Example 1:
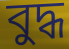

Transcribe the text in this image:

বুদ্ধ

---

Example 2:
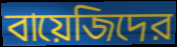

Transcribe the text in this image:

বায়েজিদের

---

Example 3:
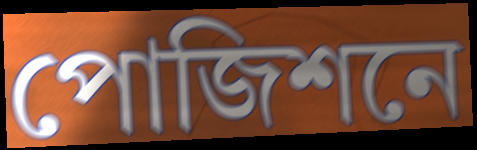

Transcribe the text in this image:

পোজিশনে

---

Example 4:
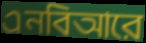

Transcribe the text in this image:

এনবিআরে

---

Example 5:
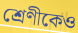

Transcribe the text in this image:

শ্রেণীকেও